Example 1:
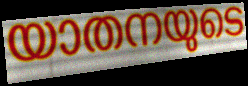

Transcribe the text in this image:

യാതനയുടെ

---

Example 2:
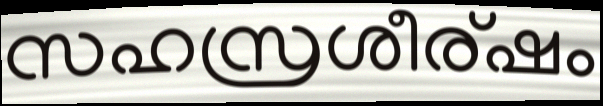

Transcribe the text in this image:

സഹസ്രശീര്ഷം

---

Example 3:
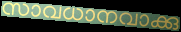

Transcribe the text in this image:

സാവധാനവാക്കു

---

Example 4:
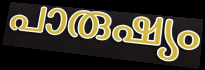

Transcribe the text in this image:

പാരുഷ്യം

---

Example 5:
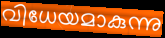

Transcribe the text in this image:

വിധേയമാകുന്നു